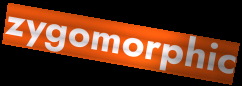
zygomorphic